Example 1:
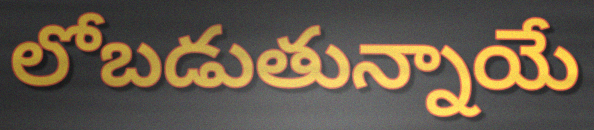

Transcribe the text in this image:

లోబడుతున్నాయే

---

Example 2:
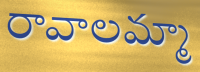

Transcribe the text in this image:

రావాలమ్మా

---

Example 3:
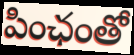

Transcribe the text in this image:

పింఛంతో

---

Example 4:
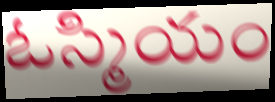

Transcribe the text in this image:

ఓస్మియం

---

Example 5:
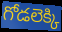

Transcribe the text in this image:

గోడలెక్కి